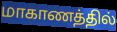
மாகாணத்தில்